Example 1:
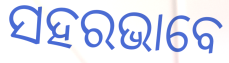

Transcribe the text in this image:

ସହରଭାବେ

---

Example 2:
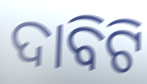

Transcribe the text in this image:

ଦାବିଟି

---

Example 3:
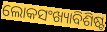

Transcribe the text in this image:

ଲୋକସଂଖ୍ୟାବିଶିଷ୍ଟ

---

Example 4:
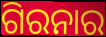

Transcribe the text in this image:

ଗିରନାର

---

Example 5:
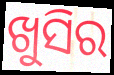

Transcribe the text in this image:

ଖୁସିର